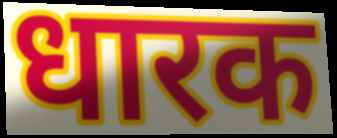
धारक